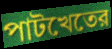
পাটখেতের